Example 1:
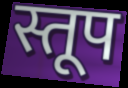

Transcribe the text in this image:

स्तूप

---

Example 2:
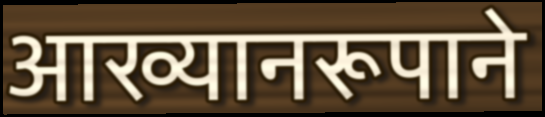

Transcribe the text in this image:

आख्यानरूपाने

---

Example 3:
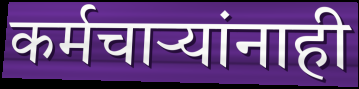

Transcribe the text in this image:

कर्मचार्‍यांनाही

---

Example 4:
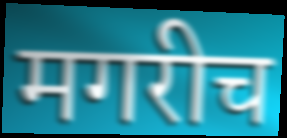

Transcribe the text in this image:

मगरीच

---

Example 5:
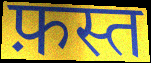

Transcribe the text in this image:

फ़स्त